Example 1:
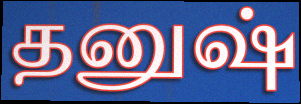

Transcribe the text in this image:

தனுஷ்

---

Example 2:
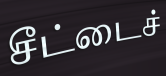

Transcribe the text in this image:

சீட்டைச்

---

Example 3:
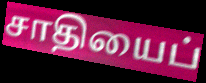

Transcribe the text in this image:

சாதியைப்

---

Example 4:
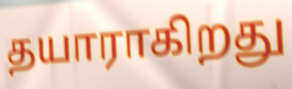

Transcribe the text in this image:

தயாராகிறது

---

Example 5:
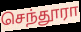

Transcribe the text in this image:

செந்தூரா